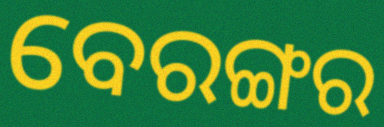
ବେରଙ୍ଗର